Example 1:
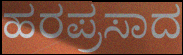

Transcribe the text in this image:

ಹರಪ್ರಸಾದ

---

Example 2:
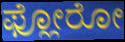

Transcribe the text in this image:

ಫ್ಲೋರೋ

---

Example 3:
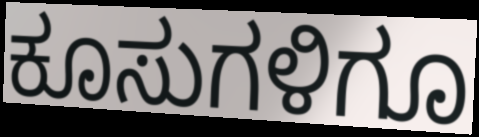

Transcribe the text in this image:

ಕೂಸುಗಳಿಗೂ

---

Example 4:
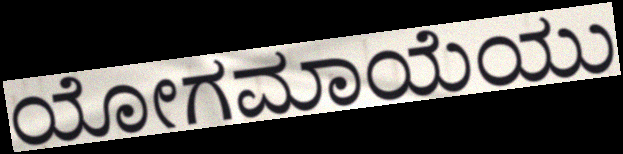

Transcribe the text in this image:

ಯೋಗಮಾಯೆಯು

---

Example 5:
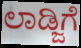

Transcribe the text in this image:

ಲಾಡ್ಜಿಗೆ